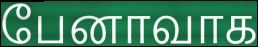
பேனாவாக